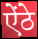
ऐंठे